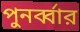
পুনর্ব্বার